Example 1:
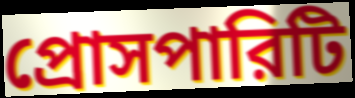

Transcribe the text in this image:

প্রোসপারিটি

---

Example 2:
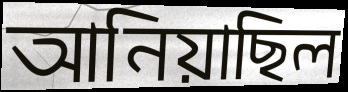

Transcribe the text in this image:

আনিয়াছিল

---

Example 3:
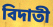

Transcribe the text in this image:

বিদাতী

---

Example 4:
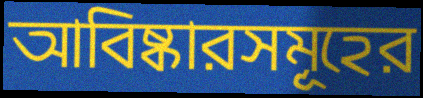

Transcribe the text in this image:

আবিষ্কারসমূহের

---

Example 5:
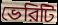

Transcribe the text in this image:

ভেরিটি